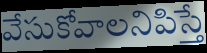
వేసుకోవాలనిపిస్తే